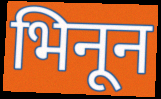
भिनून